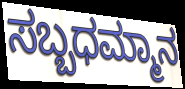
ಸಬ್ಬಧಮ್ಮಾನ